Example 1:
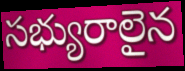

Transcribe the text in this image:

సభ్యురాలైన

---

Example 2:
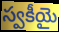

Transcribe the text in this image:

స్వకీయై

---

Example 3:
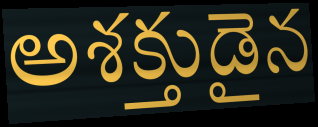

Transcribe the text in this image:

అశక్తుడైన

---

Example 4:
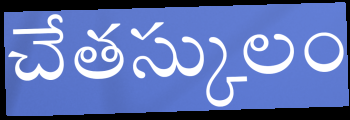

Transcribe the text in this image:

చేతస్కులం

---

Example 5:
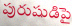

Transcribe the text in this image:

పురుషుడిపై